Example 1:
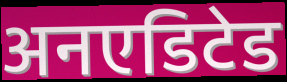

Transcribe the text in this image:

अनएडिटेड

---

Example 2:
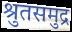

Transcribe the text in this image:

श्रुतसमुद्र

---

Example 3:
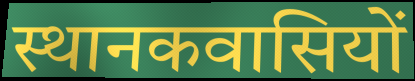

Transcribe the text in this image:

स्थानकवासियों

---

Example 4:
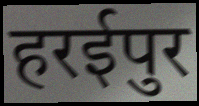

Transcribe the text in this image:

हरईपुर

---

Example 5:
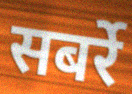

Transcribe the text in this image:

सबर्रे